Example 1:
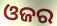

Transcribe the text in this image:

ଓଜର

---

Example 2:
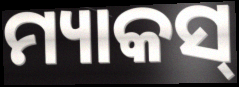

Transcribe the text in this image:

ମ୍ୟାକସ୍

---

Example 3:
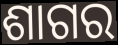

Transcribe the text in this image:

ଶାଗର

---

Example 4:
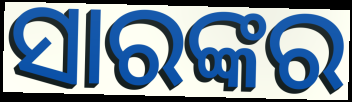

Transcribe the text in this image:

ସାରଙ୍କର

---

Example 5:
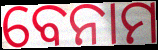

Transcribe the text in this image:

ବେନାମ